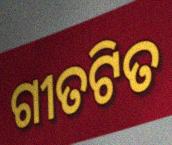
ଗୀତଟିତ